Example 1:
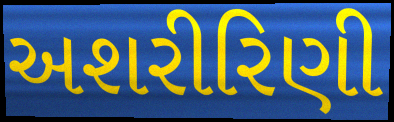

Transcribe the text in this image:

અશરીરિણી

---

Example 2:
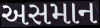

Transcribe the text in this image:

અસમાન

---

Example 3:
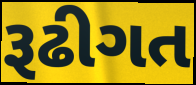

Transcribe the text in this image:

રૂઢીગત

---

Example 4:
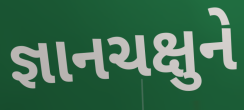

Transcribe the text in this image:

જ્ઞાનચક્ષુને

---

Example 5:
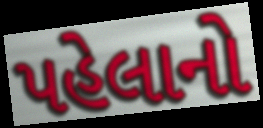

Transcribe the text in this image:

પહેલાનો